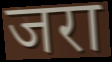
जरा